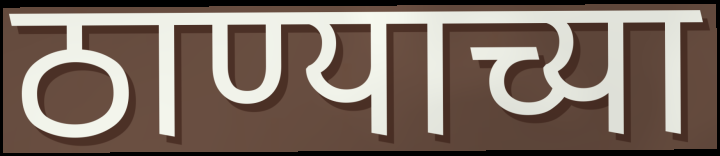
ठाण्याच्या